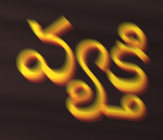
వ్యక్తి